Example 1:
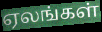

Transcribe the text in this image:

ஏலங்கள்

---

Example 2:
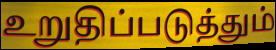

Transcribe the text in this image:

உறுதிப்படுத்தும்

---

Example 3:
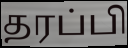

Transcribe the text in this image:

தரப்பி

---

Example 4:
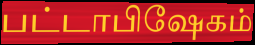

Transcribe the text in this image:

பட்டாபிஷேகம்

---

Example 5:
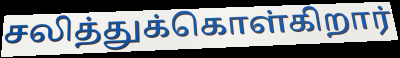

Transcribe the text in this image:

சலித்துக்கொள்கிறார்